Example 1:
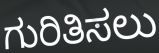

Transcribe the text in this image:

ಗುರಿತಿಸಲು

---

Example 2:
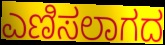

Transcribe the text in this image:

ಎಣಿಸಲಾಗದ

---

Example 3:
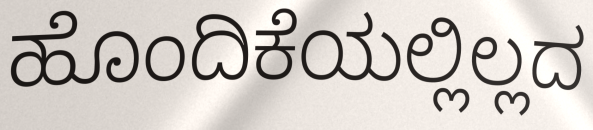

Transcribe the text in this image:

ಹೊಂದಿಕೆಯಲ್ಲಿಲ್ಲದ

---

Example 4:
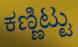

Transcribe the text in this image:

ಕಣ್ಣಿಟ್ಟು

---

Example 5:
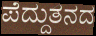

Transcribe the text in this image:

ಪೆದ್ದುತನದ